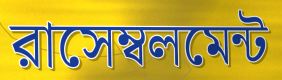
রাসেম্বলমেন্ট